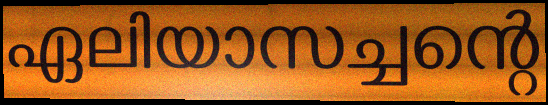
ഏലിയാസച്ചന്റെ